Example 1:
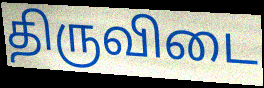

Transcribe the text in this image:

திருவிடை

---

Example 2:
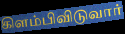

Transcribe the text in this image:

கிளம்பிவிடுவார்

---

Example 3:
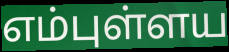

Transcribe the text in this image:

எம்புள்ளய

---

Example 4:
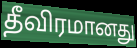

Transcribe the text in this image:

தீவிரமானது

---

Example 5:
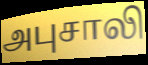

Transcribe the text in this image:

அபுசாலி